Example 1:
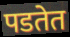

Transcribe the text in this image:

पडतेत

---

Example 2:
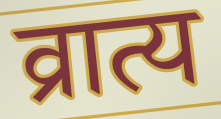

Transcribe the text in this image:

व्रात्य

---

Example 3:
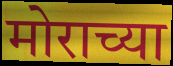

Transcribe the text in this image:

मोराच्या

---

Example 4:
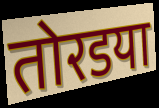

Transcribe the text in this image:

तोरडया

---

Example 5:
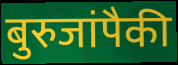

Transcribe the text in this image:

बुरुजांपैकी